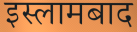
इस्लामबाद